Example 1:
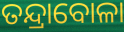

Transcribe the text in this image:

ତନ୍ଦ୍ରାବୋଳା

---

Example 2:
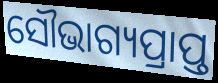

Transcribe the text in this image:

ସୌଭାଗ୍ୟପ୍ରାପ୍ତ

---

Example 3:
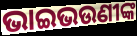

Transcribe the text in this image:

ଭାଇଭଉଣୀଙ୍କ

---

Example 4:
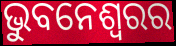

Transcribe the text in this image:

ଭୁବନେଶ୍ୱରର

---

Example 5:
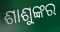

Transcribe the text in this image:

ଶାଶୁଙ୍କର